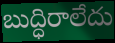
బుద్ధిరాలేదు